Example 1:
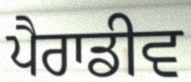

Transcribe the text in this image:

ਪੈਰਾਡੀਵ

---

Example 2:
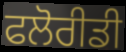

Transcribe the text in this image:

ਫਲੋਰੀਡੀ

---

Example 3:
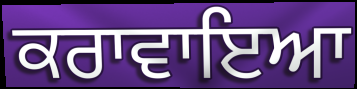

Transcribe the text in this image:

ਕਰਾਵਾਇਆ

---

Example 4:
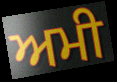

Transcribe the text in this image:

ਅਮੀ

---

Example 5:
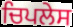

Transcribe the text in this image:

ਚਿਪਲੇਸ